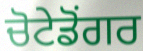
ਚੋਟੇਡੋਂਗਰ